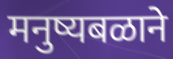
मनुष्यबळाने